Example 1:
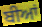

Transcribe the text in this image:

ਬੀਆਂ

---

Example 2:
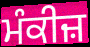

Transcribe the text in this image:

ਮੰਕੀਜ਼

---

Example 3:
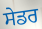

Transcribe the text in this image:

ਸੇਡਰ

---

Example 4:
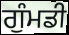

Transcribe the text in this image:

ਗੁੰਮਡੀ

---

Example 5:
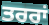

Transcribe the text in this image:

ਤਰਰਾਂ